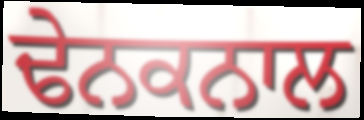
ਢੇਨਕਨਾਲ